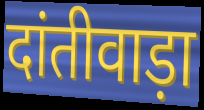
दांतीवाड़ा